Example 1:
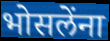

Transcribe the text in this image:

भोसलेंना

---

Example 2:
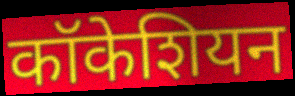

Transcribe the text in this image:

कॉकेशियन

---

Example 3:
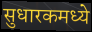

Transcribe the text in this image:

सुधारकमध्ये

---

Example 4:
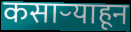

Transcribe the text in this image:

कसाऱ्याहून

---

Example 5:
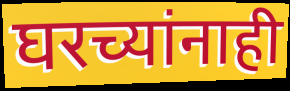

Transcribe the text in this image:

घरच्यांनाही